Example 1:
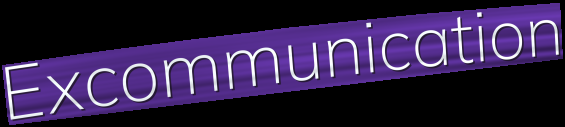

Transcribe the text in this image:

Excommunication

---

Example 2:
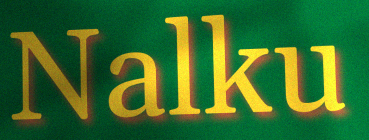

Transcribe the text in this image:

Nalku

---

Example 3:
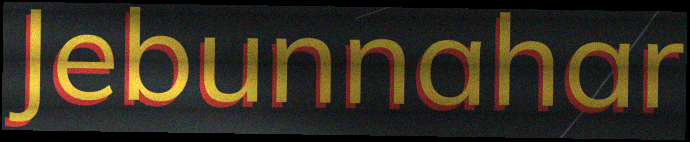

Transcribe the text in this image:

Jebunnahar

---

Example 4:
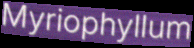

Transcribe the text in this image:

Myriophyllum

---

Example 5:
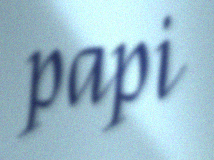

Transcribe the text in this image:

papi